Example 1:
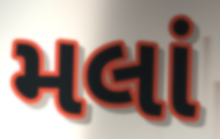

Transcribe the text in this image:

મલાં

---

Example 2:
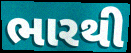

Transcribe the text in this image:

ભારથી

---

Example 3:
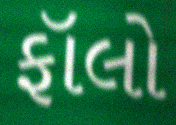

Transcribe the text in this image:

ફૉલો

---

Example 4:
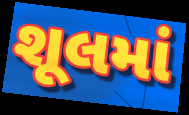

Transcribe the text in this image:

શૂલમાં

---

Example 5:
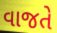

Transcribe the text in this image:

વાજતે